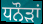
ਧਨੌੜਾਂ